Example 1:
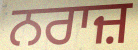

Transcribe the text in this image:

ਨਰਾਜ਼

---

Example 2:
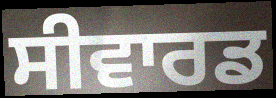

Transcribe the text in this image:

ਸੀਵਾਰਡ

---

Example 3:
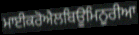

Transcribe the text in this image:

ਮਾਈਕਰੋਐਲਬਿਊਮਿਨੂਰੀਆ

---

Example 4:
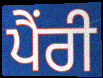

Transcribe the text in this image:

ਪੈਂਰੀ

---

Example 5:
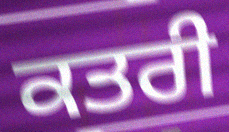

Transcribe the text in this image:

ਕਤਰੀ